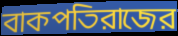
বাকপতিরাজের